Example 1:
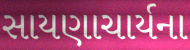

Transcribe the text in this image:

સાયણાચાર્યના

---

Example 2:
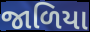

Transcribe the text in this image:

જાળિયા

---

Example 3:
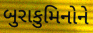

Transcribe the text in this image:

બુરાકુમિનોને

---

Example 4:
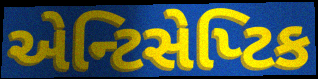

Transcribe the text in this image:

એન્ટિસેપ્ટિક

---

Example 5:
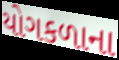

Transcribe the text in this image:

યોગકળાના